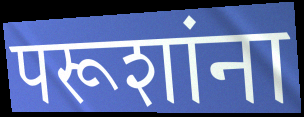
परूशांना